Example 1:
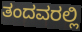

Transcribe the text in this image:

ತಂದವರಲ್ಲಿ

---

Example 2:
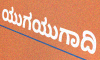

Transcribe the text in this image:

ಯುಗಯುಗಾದಿ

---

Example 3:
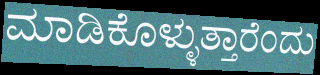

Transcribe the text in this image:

ಮಾಡಿಕೊಳ್ಳುತ್ತಾರೆಂದು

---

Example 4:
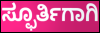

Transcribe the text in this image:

ಸ್ಫೂರ್ತಿಗಾಗಿ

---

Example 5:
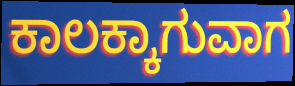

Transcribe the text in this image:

ಕಾಲಕ್ಕಾಗುವಾಗ